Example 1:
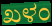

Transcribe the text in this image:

ಖಳಂ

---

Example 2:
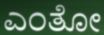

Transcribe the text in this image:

ಎಂತೋ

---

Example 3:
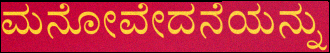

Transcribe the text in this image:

ಮನೋವೇದನೆಯನ್ನು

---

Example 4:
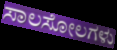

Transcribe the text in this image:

ಸಾಲಸೋಲಗಳು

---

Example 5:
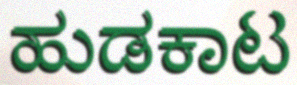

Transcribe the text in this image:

ಹುಡಕಾಟ